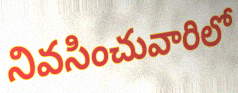
నివసించువారిలో